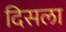
दिसला